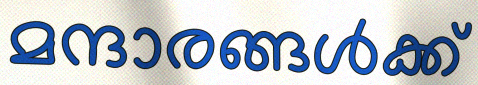
മന്ദാരങ്ങൾക്ക്